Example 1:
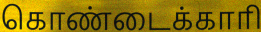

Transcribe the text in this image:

கொண்டைக்காரி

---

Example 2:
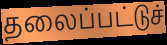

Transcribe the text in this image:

தலைப்பட்டுச்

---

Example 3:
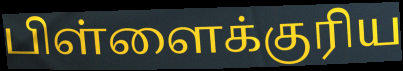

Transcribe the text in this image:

பிள்ளைக்குரிய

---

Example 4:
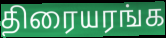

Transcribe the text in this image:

திரையரங்க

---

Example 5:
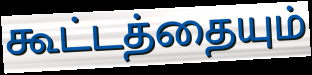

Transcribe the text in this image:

கூட்டத்தையும்